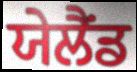
ਯੇਲੈਂਡ